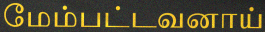
மேம்பட்டவனாய்